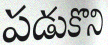
పడుకొని